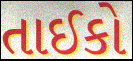
તાઈકો